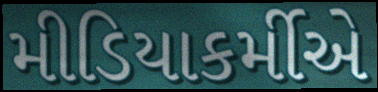
મીડિયાકર્મીએ